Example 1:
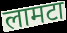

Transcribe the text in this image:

लामटा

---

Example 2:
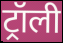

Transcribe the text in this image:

ट्रॉली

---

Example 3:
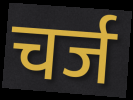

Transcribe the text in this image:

चर्ज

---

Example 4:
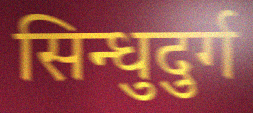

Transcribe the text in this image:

सिन्धुदुर्ग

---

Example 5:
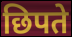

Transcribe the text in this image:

छिपते